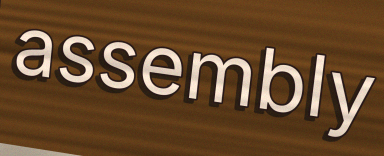
assembly